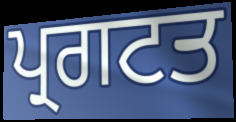
ਪ੍ਰਗਟਤ